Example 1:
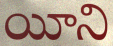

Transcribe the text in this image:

యీని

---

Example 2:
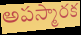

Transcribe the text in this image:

అపస్మారక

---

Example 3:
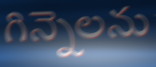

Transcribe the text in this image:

గిన్నెలను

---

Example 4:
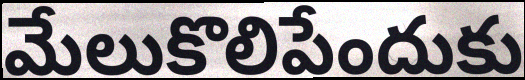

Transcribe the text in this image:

మేలుకొలిపేందుకు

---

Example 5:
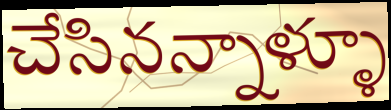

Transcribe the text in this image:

చేసినన్నాళ్ళూ